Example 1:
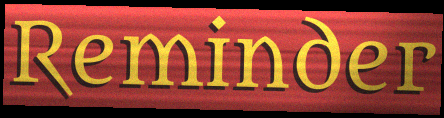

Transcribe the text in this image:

Reminder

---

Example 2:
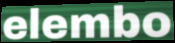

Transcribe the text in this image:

elembo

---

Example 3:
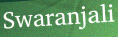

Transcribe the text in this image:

Swaranjali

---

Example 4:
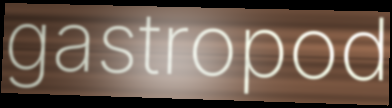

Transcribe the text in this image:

gastropod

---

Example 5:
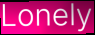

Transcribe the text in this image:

Lonely